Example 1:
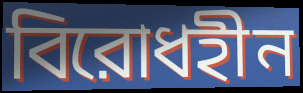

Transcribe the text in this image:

বিরোধহীন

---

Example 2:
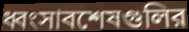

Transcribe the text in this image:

ধ্বংসাবশেষগুলির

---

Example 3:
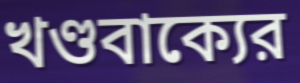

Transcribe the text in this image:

খণ্ডবাক্যের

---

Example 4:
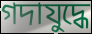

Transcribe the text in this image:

গদাযুদ্ধে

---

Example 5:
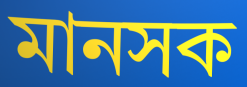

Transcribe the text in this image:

মানসক